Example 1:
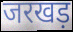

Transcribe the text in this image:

जरखड़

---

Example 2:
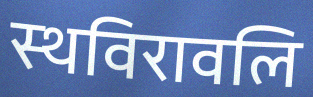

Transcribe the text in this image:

स्थविरावलि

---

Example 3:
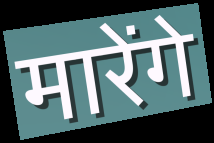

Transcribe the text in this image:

मारेंगे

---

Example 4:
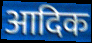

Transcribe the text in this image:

आदिक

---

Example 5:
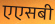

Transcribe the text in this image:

एएसबी